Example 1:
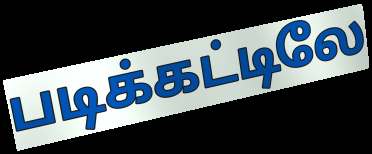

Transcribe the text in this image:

படிக்கட்டிலே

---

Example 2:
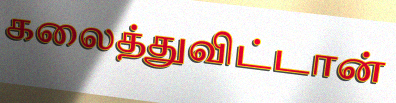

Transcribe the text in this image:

கலைத்துவிட்டான்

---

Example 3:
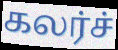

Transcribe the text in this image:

கலர்ச்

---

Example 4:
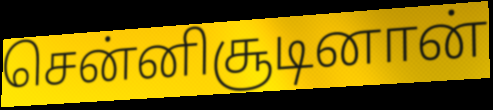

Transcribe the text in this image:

சென்னிசூடினான்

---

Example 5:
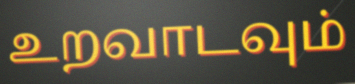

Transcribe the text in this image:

உறவாடவும்